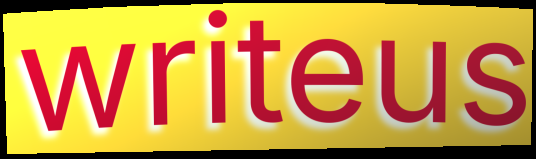
writeus